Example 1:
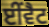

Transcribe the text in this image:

ਈਂਵੈਟ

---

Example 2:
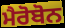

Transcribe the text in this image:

ਮੈਰੋਬੋਨ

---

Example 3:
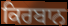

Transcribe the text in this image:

ਕਿਰਬਾਨ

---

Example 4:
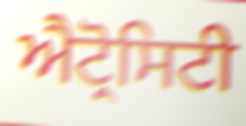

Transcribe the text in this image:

ਐਟ੍ਰੋਸਿਟੀ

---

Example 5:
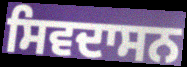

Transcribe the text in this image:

ਸਿਵਦਾਸਨ